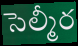
సెల్మీర